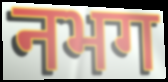
नभग